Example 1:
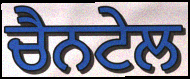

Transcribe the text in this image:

ਚੈਨਟੇਲ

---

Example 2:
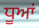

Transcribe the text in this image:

ਧੂਆਂ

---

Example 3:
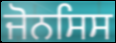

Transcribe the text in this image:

ਜੋਨਸਿਸ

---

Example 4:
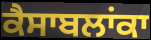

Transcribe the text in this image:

ਕੈਸਾਬਲਾਂਕਾ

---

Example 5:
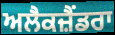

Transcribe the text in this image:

ਅਲੈਕਜ਼ੈਂਡਰਾ